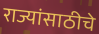
राज्यांसाठीचे